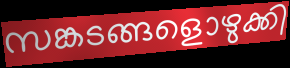
സങ്കടങ്ങളൊഴുക്കി